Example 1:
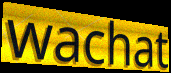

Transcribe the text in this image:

wachat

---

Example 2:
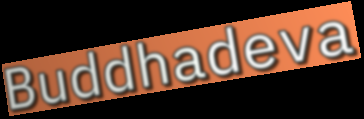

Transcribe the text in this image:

Buddhadeva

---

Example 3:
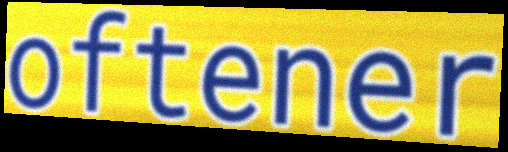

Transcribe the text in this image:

oftener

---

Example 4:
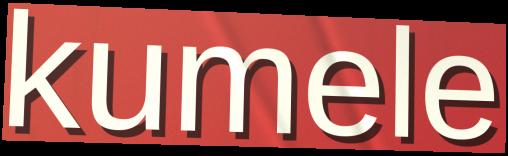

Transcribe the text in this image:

kumele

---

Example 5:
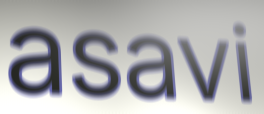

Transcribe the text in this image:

asavi